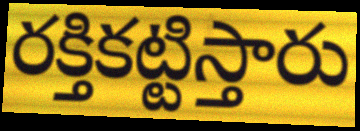
రక్తికట్టిస్తారు